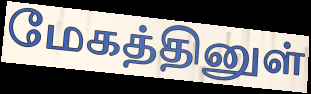
மேகத்தினுள்